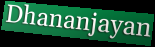
Dhananjayan